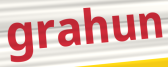
grahun